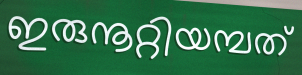
ഇരുനൂറ്റിയമ്പത്